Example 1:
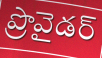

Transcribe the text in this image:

ప్రొవైడర్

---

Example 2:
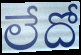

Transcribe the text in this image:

లేదో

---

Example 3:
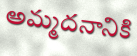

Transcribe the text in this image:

అమ్మదనానికి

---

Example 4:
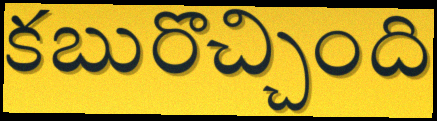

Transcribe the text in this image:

కబురొచ్చింది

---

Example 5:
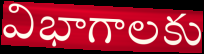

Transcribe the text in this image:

విభాగాలకు